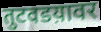
तुटवडय़ावर